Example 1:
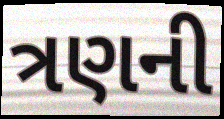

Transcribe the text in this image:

ત્રણની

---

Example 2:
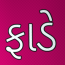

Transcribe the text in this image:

ફાડે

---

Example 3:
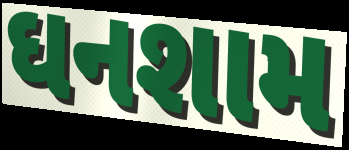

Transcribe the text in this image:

ઘનશામ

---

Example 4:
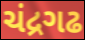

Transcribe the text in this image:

ચંદ્રગઢ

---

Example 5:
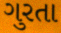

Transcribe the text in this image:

ગુરતા